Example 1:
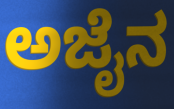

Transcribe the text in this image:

ಅಜೈನ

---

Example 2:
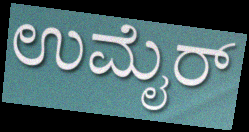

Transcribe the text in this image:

ಉಮೈರ್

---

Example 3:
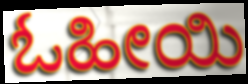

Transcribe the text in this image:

ಓಹೀಯಿ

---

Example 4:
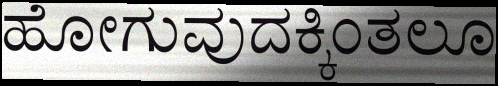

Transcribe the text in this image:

ಹೋಗುವುದಕ್ಕಿಂತಲೂ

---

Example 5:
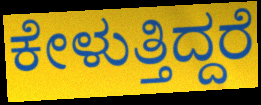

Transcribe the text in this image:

ಕೇಳುತ್ತಿದ್ದರೆ